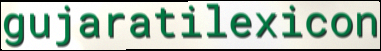
gujaratilexicon